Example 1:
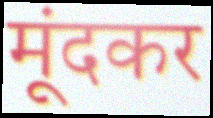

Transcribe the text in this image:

मूंदकर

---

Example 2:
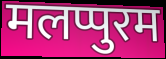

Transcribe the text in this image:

मलप्पुरम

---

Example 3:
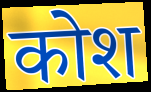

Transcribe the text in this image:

कोश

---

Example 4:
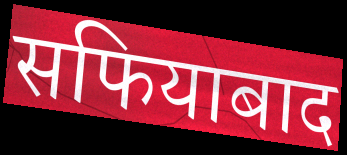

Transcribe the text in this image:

सफियाबाद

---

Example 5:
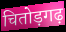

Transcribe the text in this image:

चितोड़गढ़